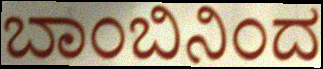
ಬಾಂಬಿನಿಂದ